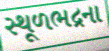
સ્થૂળભદ્રના